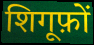
शिगूफ़ों